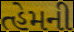
ત્હેમની